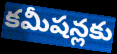
కమీషన్లకు